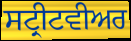
ਸਟ੍ਰੀਟਵੀਅਰ